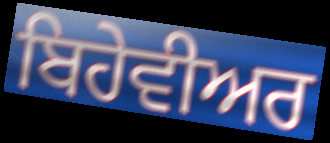
ਬਿਹੇਵੀਅਰ